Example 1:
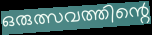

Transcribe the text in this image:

ഒരുത്സവത്തിന്റെ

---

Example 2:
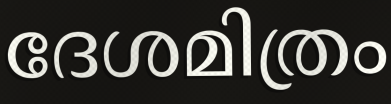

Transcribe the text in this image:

ദേശമിത്രം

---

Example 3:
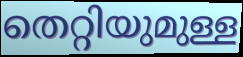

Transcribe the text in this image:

തെറ്റിയുമുള്ള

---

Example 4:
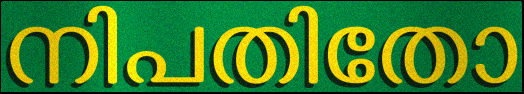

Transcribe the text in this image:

നിപതിതോ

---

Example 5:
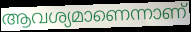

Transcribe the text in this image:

ആവശ്യമാണെന്നാണ്